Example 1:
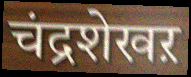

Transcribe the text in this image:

चंद्रशेखऱ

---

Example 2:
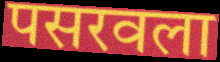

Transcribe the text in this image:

पसरवला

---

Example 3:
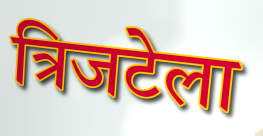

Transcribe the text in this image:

त्रिजटेला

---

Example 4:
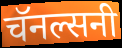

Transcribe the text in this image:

चॅनल्सनी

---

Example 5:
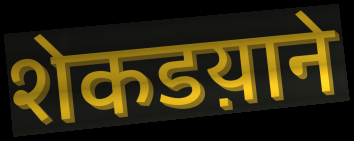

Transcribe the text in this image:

शेकडय़ाने